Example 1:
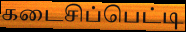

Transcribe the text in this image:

கடைசிப்பெட்டி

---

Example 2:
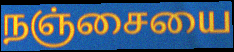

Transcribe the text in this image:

நஞ்சையை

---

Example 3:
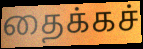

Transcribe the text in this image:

தைக்கச்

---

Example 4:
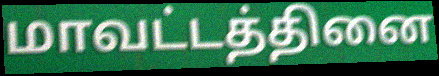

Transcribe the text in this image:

மாவட்டத்தினை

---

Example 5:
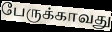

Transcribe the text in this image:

பேருக்காவது